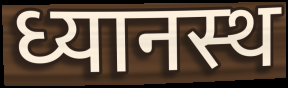
ध्यानस्थ